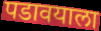
पडावयाला